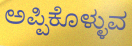
ಅಪ್ಪಿಕೊಳ್ಳುವ